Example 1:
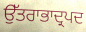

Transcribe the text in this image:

ਉੱਤਰਾਭਾਦ੍ਰਪਦ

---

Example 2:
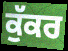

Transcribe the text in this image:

ਕੁੱਕਰ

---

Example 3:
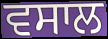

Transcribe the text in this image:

ਵਸਾਲ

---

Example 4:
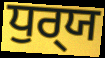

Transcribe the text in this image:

ਧੁਰ੍‍ਯ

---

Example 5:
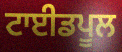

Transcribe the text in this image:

ਟਾਈਡਪੂਲ